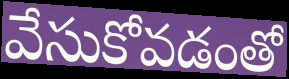
వేసుకోవడంతో